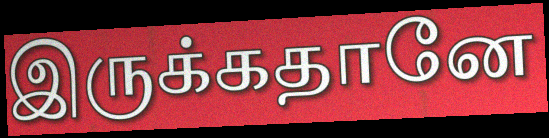
இருக்கதானே